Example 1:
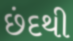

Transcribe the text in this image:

છંદથી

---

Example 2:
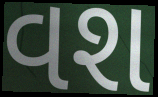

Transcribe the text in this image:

વશ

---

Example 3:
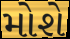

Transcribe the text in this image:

મોશે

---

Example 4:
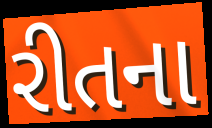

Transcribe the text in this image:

રીતના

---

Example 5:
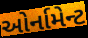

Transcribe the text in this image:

ઓર્નામેન્ટ